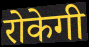
रोकेगी